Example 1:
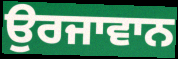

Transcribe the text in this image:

ਉਰਜਾਵਾਨ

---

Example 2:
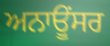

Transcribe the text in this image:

ਅਨਾਊਂਸਰ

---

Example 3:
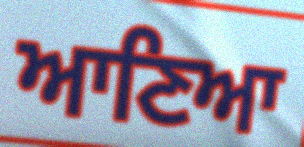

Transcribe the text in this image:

ਆਣਿਆ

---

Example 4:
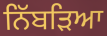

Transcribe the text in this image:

ਨਿੱਬੜਿਆ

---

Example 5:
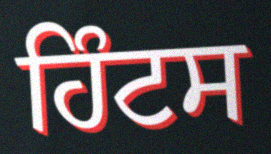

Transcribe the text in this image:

ਹਿੰਟਸ